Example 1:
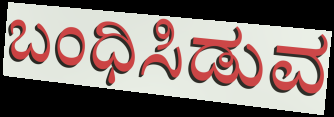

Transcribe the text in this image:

ಬಂಧಿಸಿಡುವ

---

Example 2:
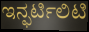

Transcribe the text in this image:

ಇನ್ಫರ್ಟಿಲಿಟಿ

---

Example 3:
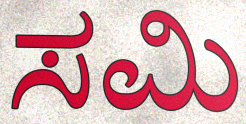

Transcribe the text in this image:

ಸಮಿ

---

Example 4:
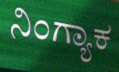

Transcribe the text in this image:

ನಿಂಗ್ಯಾಕ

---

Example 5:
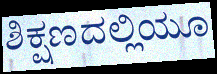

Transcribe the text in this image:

ಶಿಕ್ಷಣದಲ್ಲಿಯೂ